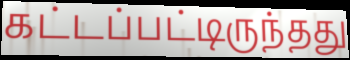
கட்டப்பட்டிருந்தது